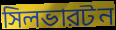
সিলভারটন